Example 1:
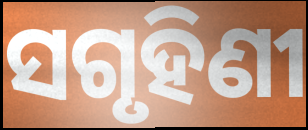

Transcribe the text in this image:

ସଗୃହିଣୀ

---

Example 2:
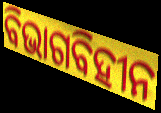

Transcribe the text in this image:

ବିଭାଗବିହୀନ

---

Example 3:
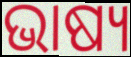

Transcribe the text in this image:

ଭାଷ୍ୟ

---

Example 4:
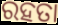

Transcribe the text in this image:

ରହତା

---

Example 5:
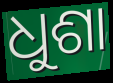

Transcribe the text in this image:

ଧୁଶା